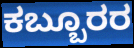
ಕಬ್ಬೂರರ